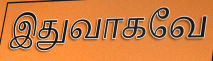
இதுவாகவே